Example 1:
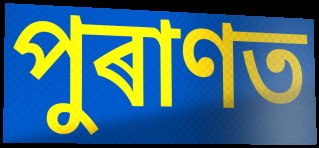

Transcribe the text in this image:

পুৰাণত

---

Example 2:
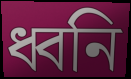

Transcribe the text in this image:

ধ্বনি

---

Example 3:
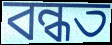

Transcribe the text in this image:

বন্ধত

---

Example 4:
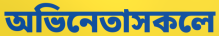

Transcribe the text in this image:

অভিনেতাসকলে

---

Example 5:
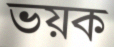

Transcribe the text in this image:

ভয়ক